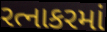
રત્નાકરમાં